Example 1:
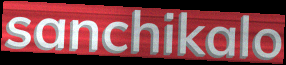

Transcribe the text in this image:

sanchikalo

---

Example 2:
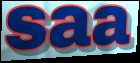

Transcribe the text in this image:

saa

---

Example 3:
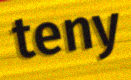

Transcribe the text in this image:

teny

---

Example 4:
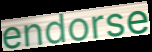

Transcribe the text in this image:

endorse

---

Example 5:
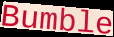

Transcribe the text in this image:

Bumble